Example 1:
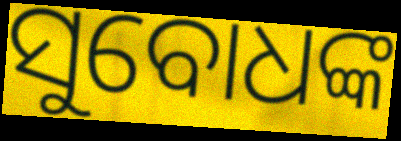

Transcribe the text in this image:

ସୁବୋଧଙ୍କ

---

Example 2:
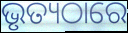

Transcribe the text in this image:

ଭୃତ୍ୟଠାରେ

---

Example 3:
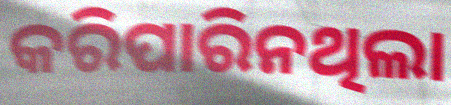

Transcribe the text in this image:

କରିପାରିନଥିଲା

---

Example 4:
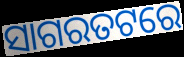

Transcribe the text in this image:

ସାଗରତଟରେ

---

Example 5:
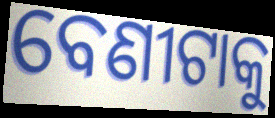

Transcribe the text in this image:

ବେଣୀଟାକୁ